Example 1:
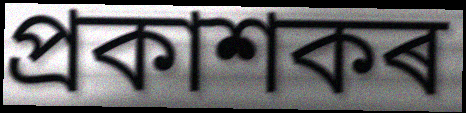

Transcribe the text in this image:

প্ৰকাশকৰ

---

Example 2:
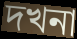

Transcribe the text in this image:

দখনা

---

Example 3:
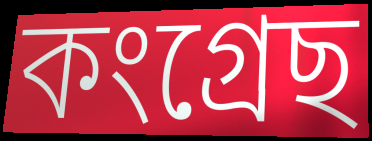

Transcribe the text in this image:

কংগ্ৰেছ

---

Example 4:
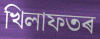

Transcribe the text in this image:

খিলাফতৰ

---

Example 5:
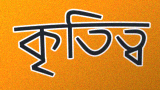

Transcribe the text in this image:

কৃতিত্ব